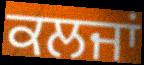
ਕਲਜਾਂ